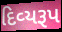
દિવ્‍યરૂપ